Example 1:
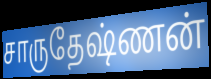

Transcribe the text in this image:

சாருதேஷ்ணன்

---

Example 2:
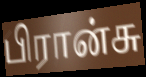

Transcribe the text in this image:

பிரான்சு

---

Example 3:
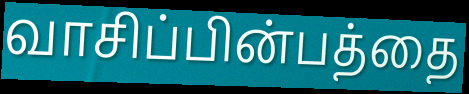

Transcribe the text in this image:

வாசிப்பின்பத்தை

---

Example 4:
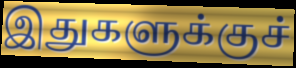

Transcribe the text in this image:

இதுகளுக்குச்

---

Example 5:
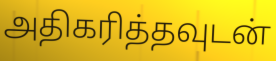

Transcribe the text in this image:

அதிகரித்தவுடன்